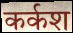
कर्कश